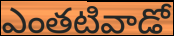
ఎంతటివాడో